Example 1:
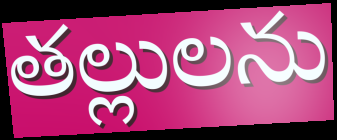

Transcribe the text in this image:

తల్లులను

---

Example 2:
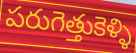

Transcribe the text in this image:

పరుగెత్తుకెళ్ళి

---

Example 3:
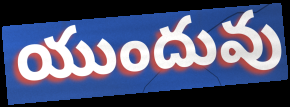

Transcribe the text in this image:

యుందువు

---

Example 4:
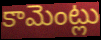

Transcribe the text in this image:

కామెంట్లు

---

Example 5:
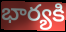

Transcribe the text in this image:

భార్యకి